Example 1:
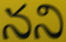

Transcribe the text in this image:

నని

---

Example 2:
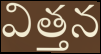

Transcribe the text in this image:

విత్తన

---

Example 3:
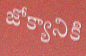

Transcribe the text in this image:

జోక్యానికి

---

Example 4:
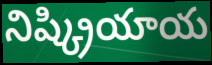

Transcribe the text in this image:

నిష్క్రియాయ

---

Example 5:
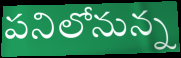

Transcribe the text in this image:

పనిలోనున్న